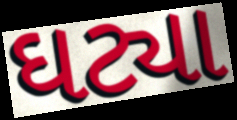
ઘટ્યા